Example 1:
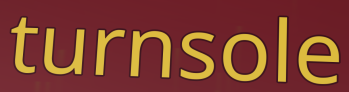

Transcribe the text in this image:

turnsole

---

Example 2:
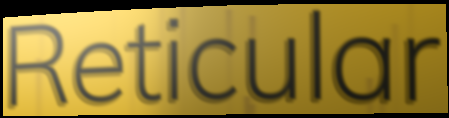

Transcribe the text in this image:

Reticular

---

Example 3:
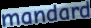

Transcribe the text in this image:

mandard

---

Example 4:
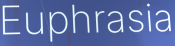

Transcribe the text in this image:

Euphrasia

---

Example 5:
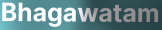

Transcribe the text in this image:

Bhagawatam